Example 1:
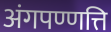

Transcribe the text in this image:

अंगपण्णत्ति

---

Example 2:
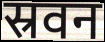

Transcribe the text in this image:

स्रवन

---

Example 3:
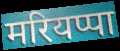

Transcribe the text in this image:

मरियप्पा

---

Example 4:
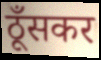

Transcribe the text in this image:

ठूँसकर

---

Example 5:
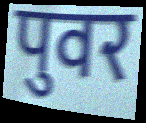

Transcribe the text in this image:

पुवर